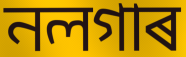
নলগাৰ